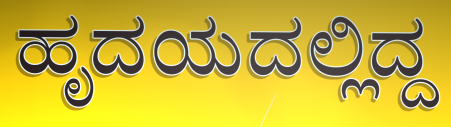
ಹೃದಯದಲ್ಲಿದ್ದ